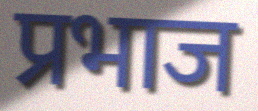
प्रभाज